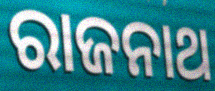
ରାଜନାଥ